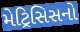
મેટ્રિસિસનો